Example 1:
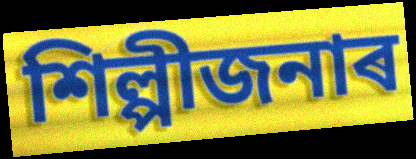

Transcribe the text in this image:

শিল্পীজনাৰ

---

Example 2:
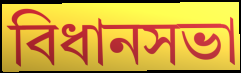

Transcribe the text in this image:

বিধানসভা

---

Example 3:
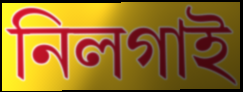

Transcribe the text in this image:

নিলগাই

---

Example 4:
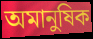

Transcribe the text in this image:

অমানুষিক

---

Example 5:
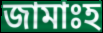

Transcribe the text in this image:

জামাঃহ